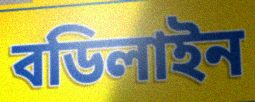
বডিলাইন